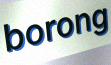
borong